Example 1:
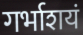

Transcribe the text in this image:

गर्भाशयं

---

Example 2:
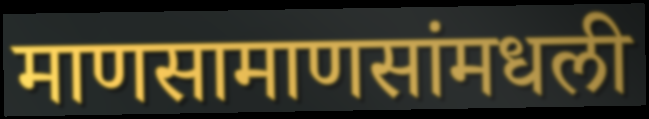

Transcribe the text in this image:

माणसामाणसांमधली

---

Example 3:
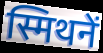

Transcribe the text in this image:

स्मिथनें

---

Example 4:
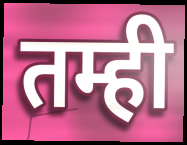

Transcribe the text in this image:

तम्ही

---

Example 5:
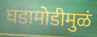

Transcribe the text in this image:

घडामोडीमुळं